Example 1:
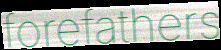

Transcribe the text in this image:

forefathers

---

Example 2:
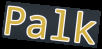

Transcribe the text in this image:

Palk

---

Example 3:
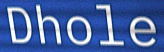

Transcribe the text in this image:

Dhole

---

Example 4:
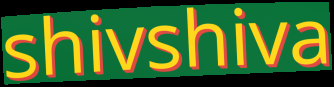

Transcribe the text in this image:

shivshiva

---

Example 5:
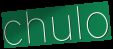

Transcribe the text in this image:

chulo